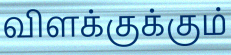
விளக்குக்கும்